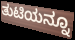
ತುಟಿಯನ್ನೂ